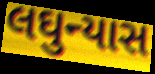
લઘુન્યાસ